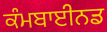
ਕੰਮਬਾਈਨਡ